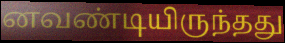
னவண்டியிருந்தது